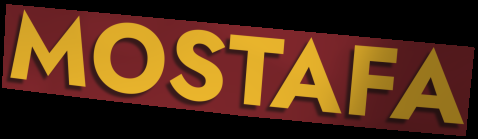
MOSTAFA